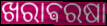
ଖରାଵରଷା